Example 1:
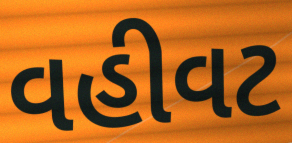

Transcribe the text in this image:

વહીવટ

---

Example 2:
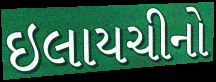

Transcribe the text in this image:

ઇલાયચીનો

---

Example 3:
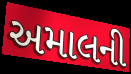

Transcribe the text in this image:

અમાલની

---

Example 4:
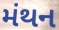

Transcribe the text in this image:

મંથન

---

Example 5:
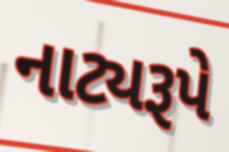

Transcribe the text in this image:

નાટ્યરૂપે